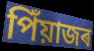
পিঁয়াজৰ